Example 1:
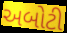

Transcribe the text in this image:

અબોટી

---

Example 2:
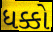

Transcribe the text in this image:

ધક્કો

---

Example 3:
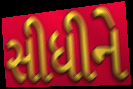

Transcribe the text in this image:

સીધીને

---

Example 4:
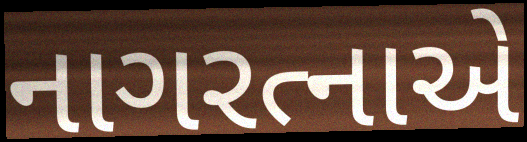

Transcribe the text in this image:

નાગરત્નાએ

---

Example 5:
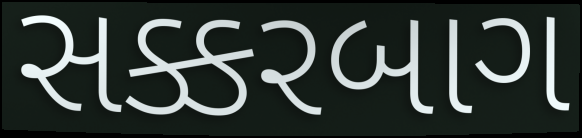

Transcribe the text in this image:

સક્કરબાગ